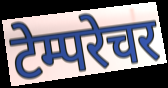
टेम्परेचर